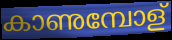
കാണുമ്പോള്